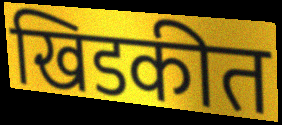
खिडकीत